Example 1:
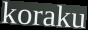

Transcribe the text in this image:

koraku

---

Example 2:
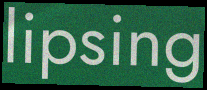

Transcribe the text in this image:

lipsing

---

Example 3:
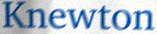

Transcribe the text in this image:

Knewton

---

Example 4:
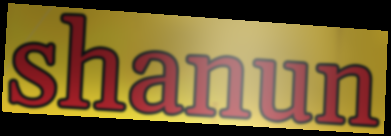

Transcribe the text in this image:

shanun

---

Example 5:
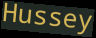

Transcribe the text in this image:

Hussey